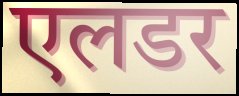
एलडर